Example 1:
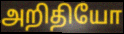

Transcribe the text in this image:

அறிதியோ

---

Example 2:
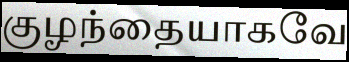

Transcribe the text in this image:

குழந்தையாகவே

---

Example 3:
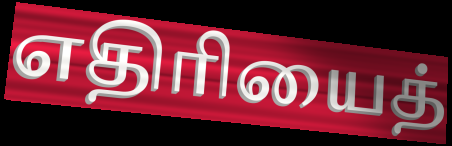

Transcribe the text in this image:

எதிரியைத்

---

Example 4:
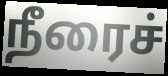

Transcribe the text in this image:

நீரைச்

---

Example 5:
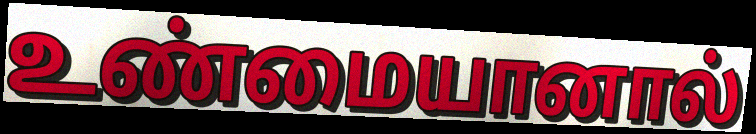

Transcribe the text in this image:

உண்மையானால்